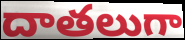
దాతలుగా